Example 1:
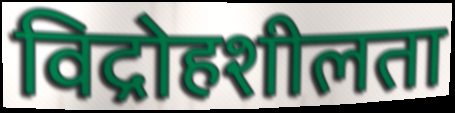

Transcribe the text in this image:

विद्रोहशीलता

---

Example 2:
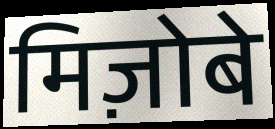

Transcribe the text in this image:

मिज़ोबे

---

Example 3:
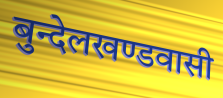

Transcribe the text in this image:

बुन्देलखण्डवासी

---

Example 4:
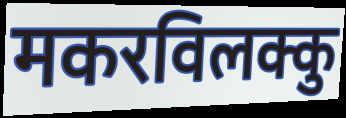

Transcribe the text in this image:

मकरविलक्कु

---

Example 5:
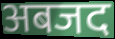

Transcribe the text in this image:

अबजद